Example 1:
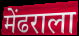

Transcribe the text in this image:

मेंढराला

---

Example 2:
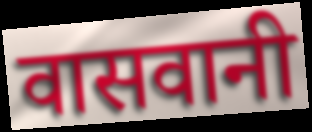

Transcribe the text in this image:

वासवानी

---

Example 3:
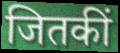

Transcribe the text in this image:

जितकीं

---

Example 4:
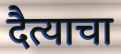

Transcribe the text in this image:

दैत्याचा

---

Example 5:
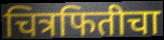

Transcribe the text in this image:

चित्रफितीचा